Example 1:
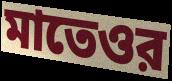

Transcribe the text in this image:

মাতেওর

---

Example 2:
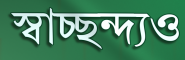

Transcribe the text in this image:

স্বাচ্ছন্দ্যও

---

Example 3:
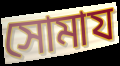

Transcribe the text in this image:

সোমায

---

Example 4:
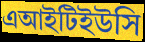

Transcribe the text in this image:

এআইটিইউসি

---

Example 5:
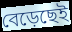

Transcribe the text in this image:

বেড়েছেই